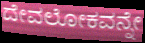
ದೇವಲೋಕವನ್ನೇ